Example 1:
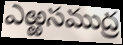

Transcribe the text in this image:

ఎఱ్ఱసముద్ర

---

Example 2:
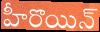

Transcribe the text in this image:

హీరొయిన్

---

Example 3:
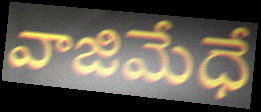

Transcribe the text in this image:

వాజిమేధే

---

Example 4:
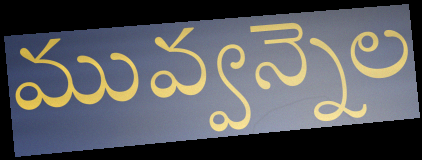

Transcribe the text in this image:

మువ్వన్నెల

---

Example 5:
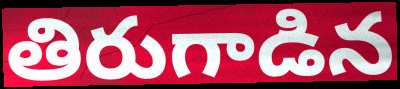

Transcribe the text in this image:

తిరుగాడిన